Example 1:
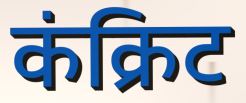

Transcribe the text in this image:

कंक्रिट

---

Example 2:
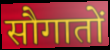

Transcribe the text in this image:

सौगातों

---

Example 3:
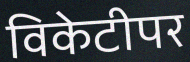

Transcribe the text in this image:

विकेटीपर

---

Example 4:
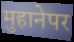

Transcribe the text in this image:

मुहानेपर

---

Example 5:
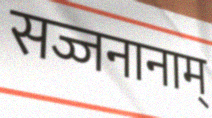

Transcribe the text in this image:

सज्जनानाम्